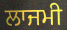
ਲਾਜਮੀ